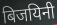
बिजयिनी